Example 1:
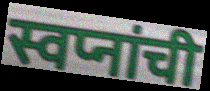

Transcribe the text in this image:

स्वप्नांची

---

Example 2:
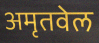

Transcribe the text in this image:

अमृतवेल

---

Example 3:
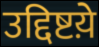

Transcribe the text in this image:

उद्दिष्टय़े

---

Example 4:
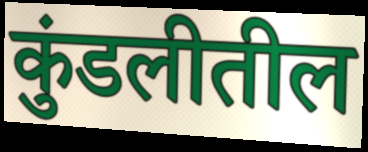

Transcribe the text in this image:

कुंडलीतील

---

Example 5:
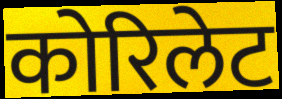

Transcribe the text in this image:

कोरिलेट